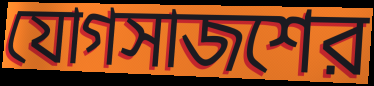
যোগসাজশের